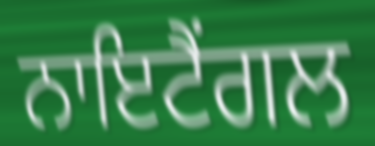
ਨਾਇਟੈਂਗਲ